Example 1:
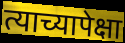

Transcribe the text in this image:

त्याच्यापेक्षा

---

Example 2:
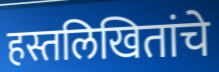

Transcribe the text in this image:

हस्तलिखितांचे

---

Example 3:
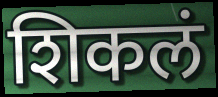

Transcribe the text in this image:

शिकलं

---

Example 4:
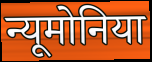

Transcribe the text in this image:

न्यूमोनिया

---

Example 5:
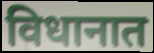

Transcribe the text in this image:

विधानात